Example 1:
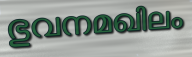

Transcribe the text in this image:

ഭുവനമഖിലം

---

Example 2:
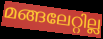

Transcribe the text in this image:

മങ്ങലേറ്റില്ല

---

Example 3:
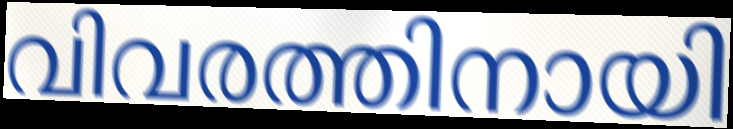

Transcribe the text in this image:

വിവരത്തിനായി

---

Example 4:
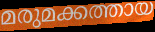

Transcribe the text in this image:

മരുമക്കത്തായ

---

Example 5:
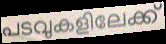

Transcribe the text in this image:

പടവുകളിലേക്ക്